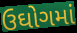
ઉઘોગમાં